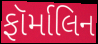
ફૉર્માલિન